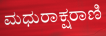
ಮಧುರಾಕ್ಷರಾಣಿ